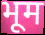
भूम